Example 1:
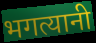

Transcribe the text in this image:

भगत्यानी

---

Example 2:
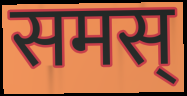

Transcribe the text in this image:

समस्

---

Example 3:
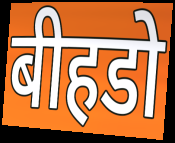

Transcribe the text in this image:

बीहडो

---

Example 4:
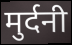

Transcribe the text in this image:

मुर्दनी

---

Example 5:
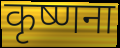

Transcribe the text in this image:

कृष्णना